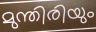
മുന്തിരിയും